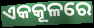
ଏକକୂଳରେ